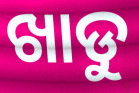
ଖାଡୁ